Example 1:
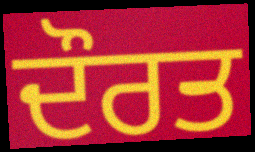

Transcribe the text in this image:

ਦੌਰਤ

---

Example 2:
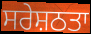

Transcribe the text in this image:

ਸਰੇਸ਼ਠਤਾ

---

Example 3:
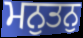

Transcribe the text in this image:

ਮਨੁਤਨੁ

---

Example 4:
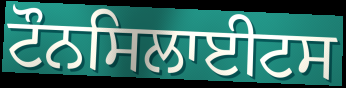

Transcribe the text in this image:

ਟੌਨਸਿਲਾਈਟਸ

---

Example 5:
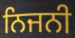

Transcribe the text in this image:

ਨਿਜਨੀ